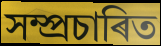
সম্প্ৰচাৰিত